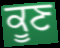
ਕੂਣ